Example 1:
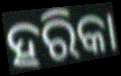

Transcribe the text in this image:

ହରିକା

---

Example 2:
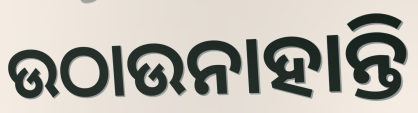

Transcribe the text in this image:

ଉଠାଉନାହାନ୍ତି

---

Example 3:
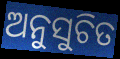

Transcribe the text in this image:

ଅନୁସୁଚିତ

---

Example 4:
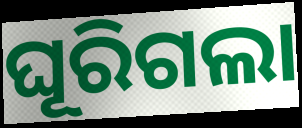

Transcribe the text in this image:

ଘୂରିଗଲା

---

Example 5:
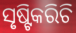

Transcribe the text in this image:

ସୃଷ୍ଟିକରିଚି